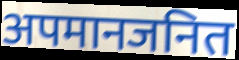
अपमानजनित